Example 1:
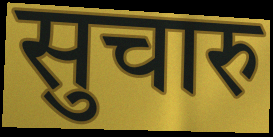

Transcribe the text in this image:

सुचारु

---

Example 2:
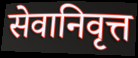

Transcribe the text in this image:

सेवानिवृत्त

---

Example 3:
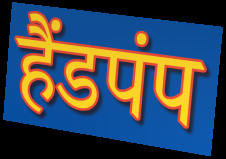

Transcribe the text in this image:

हैंडपंप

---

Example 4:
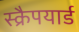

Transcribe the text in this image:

स्क्रैपयार्ड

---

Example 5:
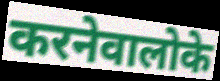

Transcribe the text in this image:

करनेवालोके